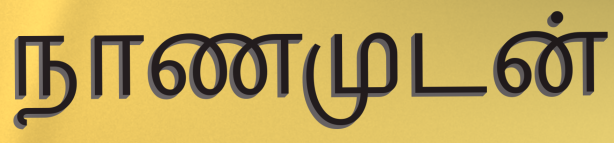
நாணமுடன்